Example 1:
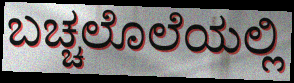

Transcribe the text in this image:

ಬಚ್ಚಲೊಲೆಯಲ್ಲಿ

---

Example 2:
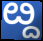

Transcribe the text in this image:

ೞ್ದ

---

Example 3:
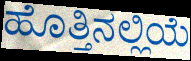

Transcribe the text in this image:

ಹೊತ್ತಿನಲ್ಲಿಯೆ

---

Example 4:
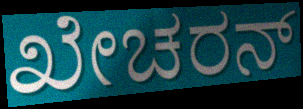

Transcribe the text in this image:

ಖೇಚರನ್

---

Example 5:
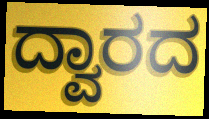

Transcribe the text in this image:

ದ್ವಾರದ